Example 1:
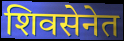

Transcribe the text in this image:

शिवसेनेत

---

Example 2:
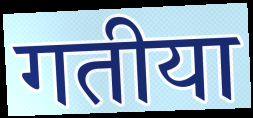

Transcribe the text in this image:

गतीया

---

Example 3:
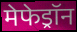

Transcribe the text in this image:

मेफेड्रॉन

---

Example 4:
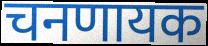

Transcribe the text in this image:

चनणायक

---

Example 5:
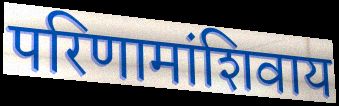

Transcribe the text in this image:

परिणामांशिवाय